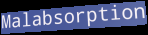
Malabsorption